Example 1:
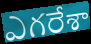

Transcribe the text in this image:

ఎగరేశా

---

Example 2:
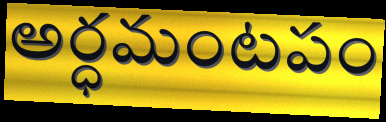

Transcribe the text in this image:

అర్ధమంటపం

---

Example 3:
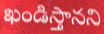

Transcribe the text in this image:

ఖండిస్తానని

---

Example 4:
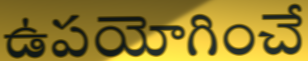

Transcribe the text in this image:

ఉపయోగించే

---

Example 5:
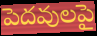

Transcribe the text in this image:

పెదవులపై